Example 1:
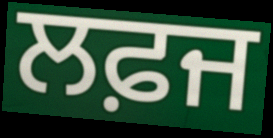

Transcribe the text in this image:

ਲਫ਼ਜ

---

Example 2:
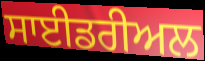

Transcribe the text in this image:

ਸਾਈਡਰੀਅਲ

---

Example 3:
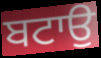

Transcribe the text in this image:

ਬਟਾਉ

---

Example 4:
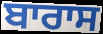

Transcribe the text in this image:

ਬਾਰਾਸ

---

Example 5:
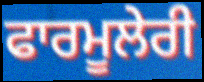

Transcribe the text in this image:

ਫਾਰਮੂਲੇਰੀ